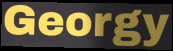
Georgy